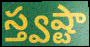
స్త్వష్టా